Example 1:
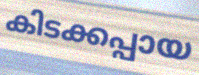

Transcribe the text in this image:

കിടക്കപ്പായ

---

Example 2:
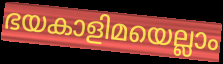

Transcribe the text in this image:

ഭയകാളിമയെല്ലാം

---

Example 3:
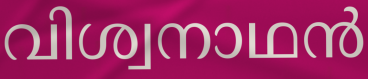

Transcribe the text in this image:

വിശ്വനാഥൻ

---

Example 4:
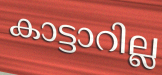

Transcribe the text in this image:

കാട്ടാറില്ല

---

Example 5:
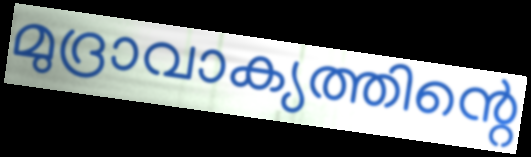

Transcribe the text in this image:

മുദ്രാവാക്യത്തിന്റെ